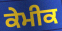
ਕੇਮੀਕ